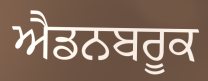
ਐਡਨਬਰੂਕ